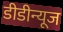
डीडीन्यूज